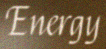
Energy